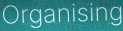
Organising